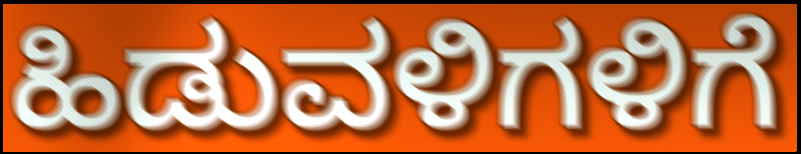
ಹಿಡುವಳಿಗಳಿಗೆ